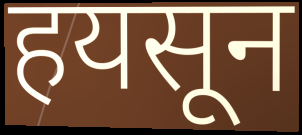
हयसून